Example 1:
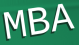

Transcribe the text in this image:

MBA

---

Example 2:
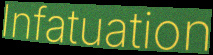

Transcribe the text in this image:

Infatuation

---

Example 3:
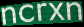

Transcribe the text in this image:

ncrxn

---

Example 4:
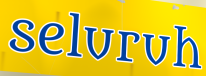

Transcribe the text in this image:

seluruh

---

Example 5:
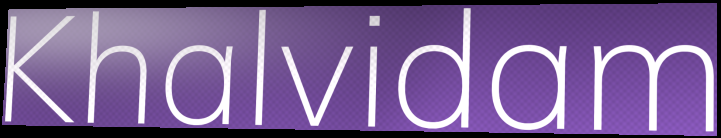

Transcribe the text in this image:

Khalvidam